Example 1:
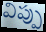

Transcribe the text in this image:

విప్పు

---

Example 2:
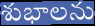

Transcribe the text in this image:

శుభాలను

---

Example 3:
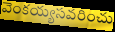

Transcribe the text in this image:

వెంకయ్యసవరించు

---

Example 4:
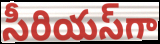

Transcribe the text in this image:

సీరియస్‌గా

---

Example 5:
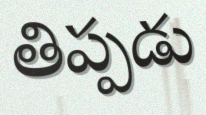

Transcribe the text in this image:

తిప్పడు